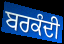
ਬਰਕੰਦੀ